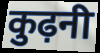
कुढ़नी